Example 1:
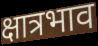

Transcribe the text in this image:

क्षात्रभाव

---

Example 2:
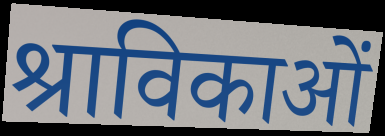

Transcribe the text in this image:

श्राविकाओं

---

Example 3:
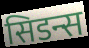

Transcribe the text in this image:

सिडन्स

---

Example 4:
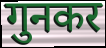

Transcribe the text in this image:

गुनकर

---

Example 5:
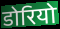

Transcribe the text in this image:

डोरियो